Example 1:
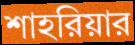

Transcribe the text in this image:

শাহরিয়ার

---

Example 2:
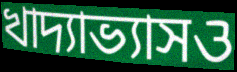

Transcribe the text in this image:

খাদ্যাভ্যাসও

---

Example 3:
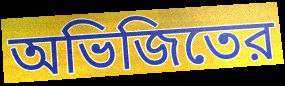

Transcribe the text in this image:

অভিজিতের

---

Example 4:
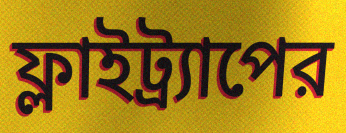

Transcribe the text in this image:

ফ্লাইট্র্যাপের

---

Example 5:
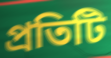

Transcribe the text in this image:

প্রতিটি